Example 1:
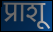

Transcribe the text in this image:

प्राशू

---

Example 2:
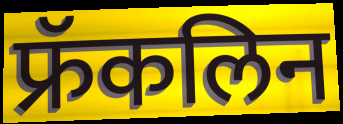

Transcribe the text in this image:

फ्रॅकलिन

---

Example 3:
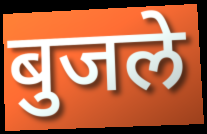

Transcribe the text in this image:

बुजले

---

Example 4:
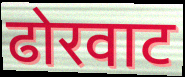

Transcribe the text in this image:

ढोरवाट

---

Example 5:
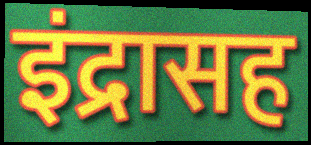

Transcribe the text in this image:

इंद्रासह